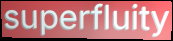
superfluity